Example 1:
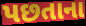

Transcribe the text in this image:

પછતાના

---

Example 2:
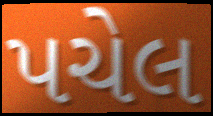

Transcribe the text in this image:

પચેલ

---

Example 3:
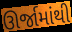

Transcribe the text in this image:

ઊર્જામાંથી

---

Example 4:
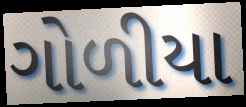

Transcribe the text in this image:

ગોળીયા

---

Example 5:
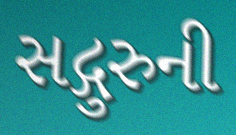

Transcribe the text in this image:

સદ્ગુરુની